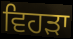
ਵਿਹੜਾ